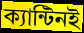
ক্যান্টিনই